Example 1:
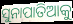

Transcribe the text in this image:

ସୁନାପାତିଆକୁ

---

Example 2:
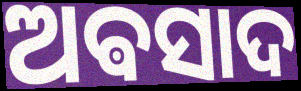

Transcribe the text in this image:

ଅଵସାଦ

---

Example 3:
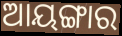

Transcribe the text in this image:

ଆୟଙ୍ଗାର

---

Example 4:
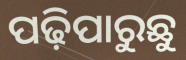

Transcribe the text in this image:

ପଢ଼ିପାରୁଛୁ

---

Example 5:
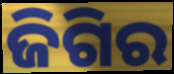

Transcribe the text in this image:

ଜିଗିର